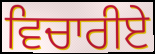
ਵਿਚਾਰੀਏ